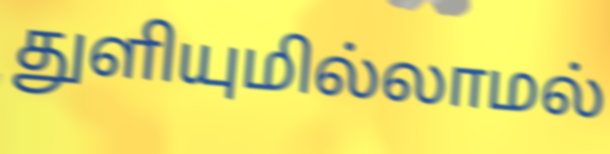
துளியுமில்லாமல்